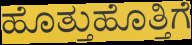
ಹೊತ್ತುಹೊತ್ತಿಗೆ